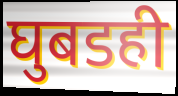
घुबडही